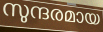
സുന്ദരമായ